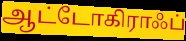
ஆட்டோகிராஃப்